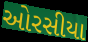
ઓરસીયા